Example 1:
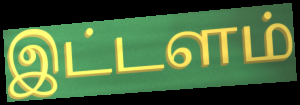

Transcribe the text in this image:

இட்டளம்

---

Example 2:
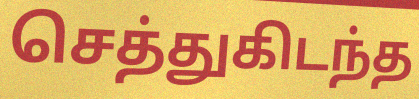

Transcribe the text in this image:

செத்துகிடந்த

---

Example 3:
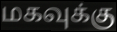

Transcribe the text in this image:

மகவுக்கு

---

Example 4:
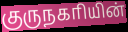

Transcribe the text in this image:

குருநகரியின்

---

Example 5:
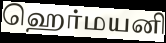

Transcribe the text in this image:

ஹெர்மயனி